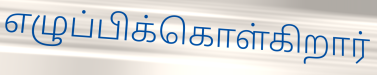
எழுப்பிக்கொள்கிறார்